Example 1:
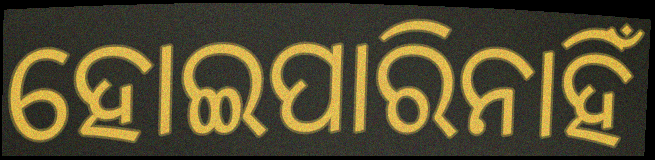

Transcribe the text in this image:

ହୋଇପାରିନାହିଁ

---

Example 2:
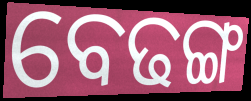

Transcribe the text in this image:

ବେଢଙ୍ଗ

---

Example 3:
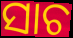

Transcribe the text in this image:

ସାଚ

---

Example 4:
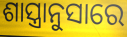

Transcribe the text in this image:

ଶାସ୍ତ୍ରାନୁସାରେ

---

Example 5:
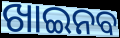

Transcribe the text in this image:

ଖାଇନବ